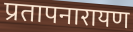
प्रतापनारायण